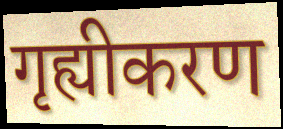
गृह्यीकरण